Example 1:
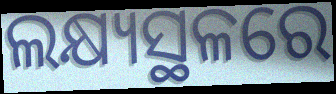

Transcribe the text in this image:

ଲକ୍ଷ୍ୟସ୍ଥଳରେ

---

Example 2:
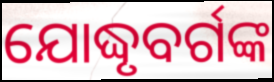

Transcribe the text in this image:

ଯୋଦ୍ଧୃବର୍ଗଙ୍କ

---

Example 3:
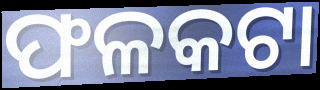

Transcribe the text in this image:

ଫଳକଟା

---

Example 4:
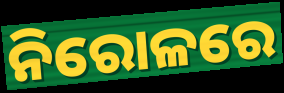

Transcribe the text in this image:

ନିରୋଳରେ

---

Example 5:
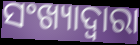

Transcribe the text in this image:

ସଂଖ୍ୟାଦ୍ୱାରା